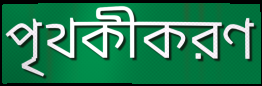
পৃথকীকরণ